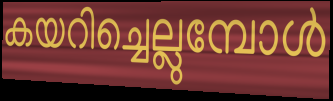
കയറിച്ചെല്ലുമ്പോൾ